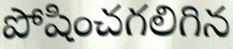
పోషించగలిగిన